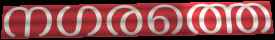
നഗരത്തെ